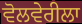
ਵੋਲਵੇਰੀਲਾ